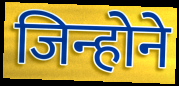
जिन्‍होने